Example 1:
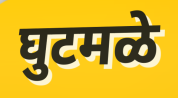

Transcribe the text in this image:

घुटमळे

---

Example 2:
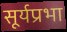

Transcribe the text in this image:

सूर्यप्रभा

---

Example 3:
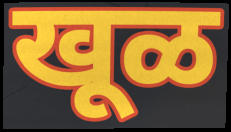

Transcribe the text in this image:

खूळ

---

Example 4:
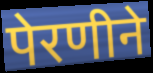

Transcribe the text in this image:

पेरणीने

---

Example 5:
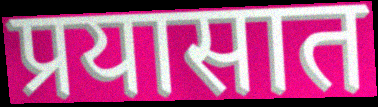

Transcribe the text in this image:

प्रयासात